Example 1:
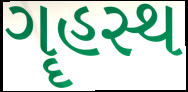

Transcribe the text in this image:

ગૄહસ્થ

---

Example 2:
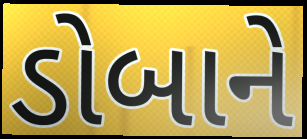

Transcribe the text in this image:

ડોબાને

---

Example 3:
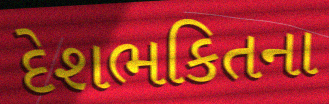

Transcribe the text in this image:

દેશભકિતના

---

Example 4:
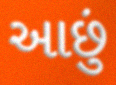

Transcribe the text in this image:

આછું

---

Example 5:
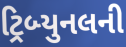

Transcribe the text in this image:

ટ્રિબ્યુનલની